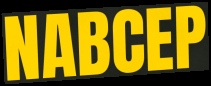
NABCEP